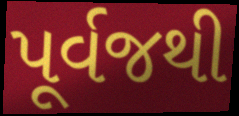
પૂર્વજથી